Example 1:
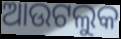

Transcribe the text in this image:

ଆଉଟଲୁକ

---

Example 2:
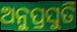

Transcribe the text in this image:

ଅନୁପ୍ରସୁତି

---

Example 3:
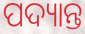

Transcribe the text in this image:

ପଦ୍ୟାନ୍ତ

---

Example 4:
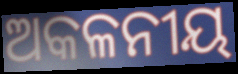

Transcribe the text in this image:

ଅକଳନୀୟ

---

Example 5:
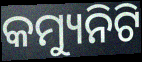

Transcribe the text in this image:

କମ୍ୟୁନିଟି